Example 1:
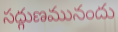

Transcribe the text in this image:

సద్గుణమునందు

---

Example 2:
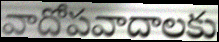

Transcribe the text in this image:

వాదోపవాదాలకు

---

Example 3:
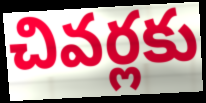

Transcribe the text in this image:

చివర్లకు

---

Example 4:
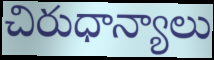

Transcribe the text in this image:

చిరుధాన్యాలు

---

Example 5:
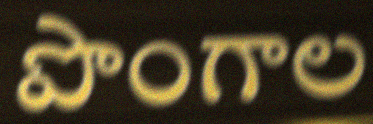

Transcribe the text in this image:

పొంగాల